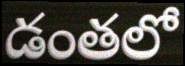
డంతలో